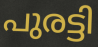
പുരട്ടി